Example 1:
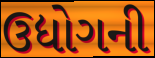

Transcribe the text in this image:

ઉદ્યોગની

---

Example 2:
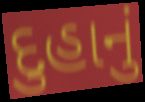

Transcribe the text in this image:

દુહાનું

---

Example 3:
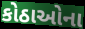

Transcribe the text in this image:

કોઠાઓના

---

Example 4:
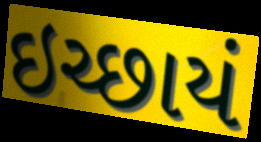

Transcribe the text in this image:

ઇચ્છાયં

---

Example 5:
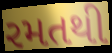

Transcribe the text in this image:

રમતથી